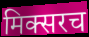
मिक्सरच